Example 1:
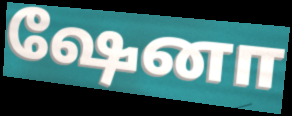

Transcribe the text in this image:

ஷேனா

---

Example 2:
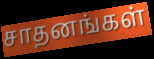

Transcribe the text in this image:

சாதனங்கள்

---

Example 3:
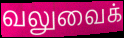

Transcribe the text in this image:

வலுவைக்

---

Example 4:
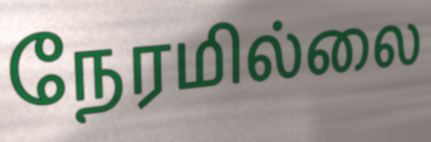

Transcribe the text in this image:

நேரமில்லை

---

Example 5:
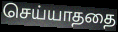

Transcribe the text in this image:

செய்யாததை